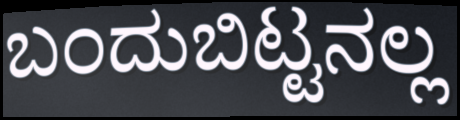
ಬಂದುಬಿಟ್ಟನಲ್ಲ